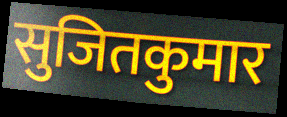
सुजितकुमार